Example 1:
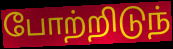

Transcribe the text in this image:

போற்றிடுந்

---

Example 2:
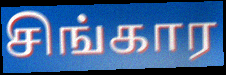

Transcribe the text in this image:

சிங்கார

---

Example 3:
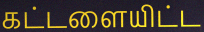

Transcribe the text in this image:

கட்டளையிட்ட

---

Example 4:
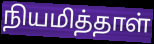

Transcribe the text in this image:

நியமித்தாள்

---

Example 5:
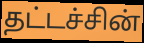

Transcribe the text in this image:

தட்டச்சின்